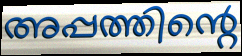
അപ്പത്തിന്റെ